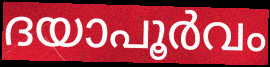
ദയാപൂർവം